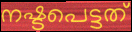
നഷ്ടപെട്ടത്